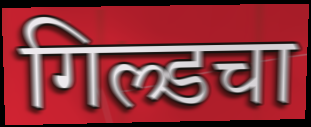
गिल्डचा